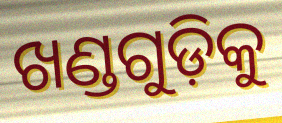
ଖଣ୍ଡଗୁଡ଼ିକୁ